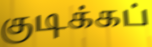
குடிக்கப்